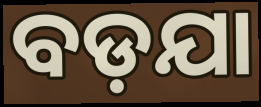
ବଡ଼ଯା